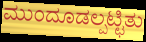
ಮುಂದೂಡಲ್ಪಟ್ಟಿತು